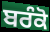
ਬਰੰਕੋ